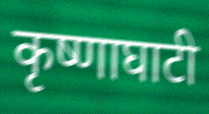
कृष्णाघाटी